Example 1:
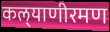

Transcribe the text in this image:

कल्याणीरमण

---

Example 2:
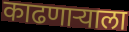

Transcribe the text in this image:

काढणार्‍याला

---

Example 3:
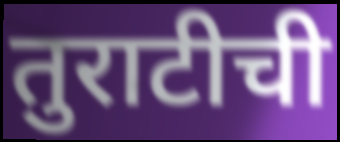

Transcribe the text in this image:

तुराटीची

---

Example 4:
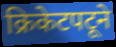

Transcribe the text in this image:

क्रिकेटपटूने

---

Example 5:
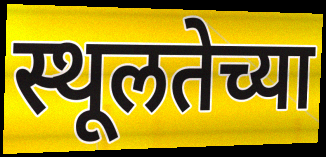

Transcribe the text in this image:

स्थूलतेच्या